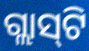
ଗ୍ଲାସ୍‍ଟି